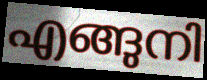
എങ്ങുനി